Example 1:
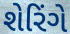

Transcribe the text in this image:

શેરિંગે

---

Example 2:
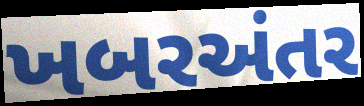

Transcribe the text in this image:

ખબરઅંતર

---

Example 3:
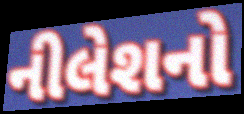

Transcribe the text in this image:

નીલેશનો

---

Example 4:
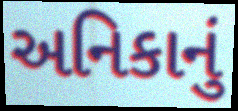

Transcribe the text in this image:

અનિકાનું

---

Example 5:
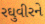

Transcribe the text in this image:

રઘુવીરને